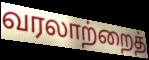
வரலாற்றைத்